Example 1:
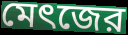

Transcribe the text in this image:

মেৎজের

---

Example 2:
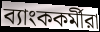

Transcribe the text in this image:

ব্যাংককর্মীরা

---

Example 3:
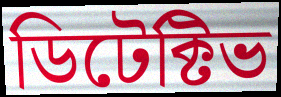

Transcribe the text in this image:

ডিটেক্টিভ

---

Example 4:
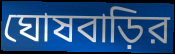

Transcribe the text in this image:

ঘোষবাড়ির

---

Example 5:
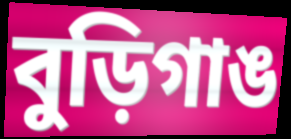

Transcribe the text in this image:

বুড়িগাঙ